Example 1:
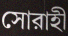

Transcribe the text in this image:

সোরাহী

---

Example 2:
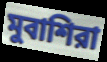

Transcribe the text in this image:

মুবাশিরা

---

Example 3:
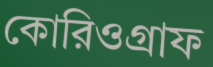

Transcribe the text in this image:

কোরিওগ্রাফ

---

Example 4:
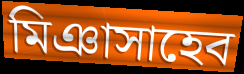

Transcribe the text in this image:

মিঞাসাহেব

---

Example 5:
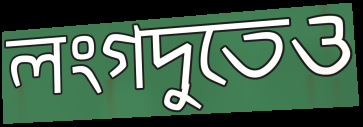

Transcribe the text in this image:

লংগদুতেও